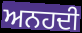
ਅਨਹਦੀ